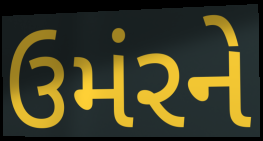
ઉમંરને